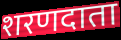
शरणदाता